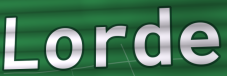
Lorde